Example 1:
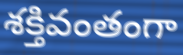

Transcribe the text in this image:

శక్తివంతంగా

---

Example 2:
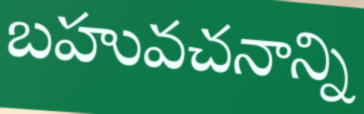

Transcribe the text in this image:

బహువచనాన్ని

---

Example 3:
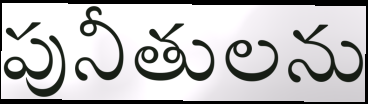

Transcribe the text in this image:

పునీతులను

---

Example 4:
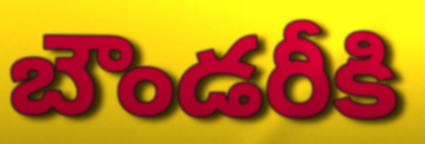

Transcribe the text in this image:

బౌండరీకి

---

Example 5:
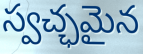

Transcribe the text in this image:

స్వచ్ఛమైన